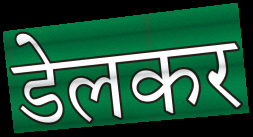
डेलकर